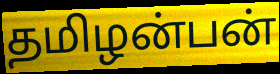
தமிழன்பன்